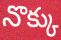
నొక్కు